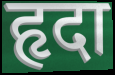
हृदा